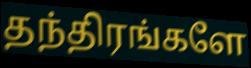
தந்திரங்களே